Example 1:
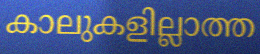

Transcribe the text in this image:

കാലുകളില്ലാത്ത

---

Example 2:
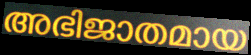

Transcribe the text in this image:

അഭിജാതമായ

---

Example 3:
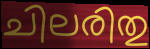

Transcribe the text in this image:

ചിലരിതു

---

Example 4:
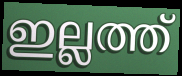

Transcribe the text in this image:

ഇല്ലത്ത്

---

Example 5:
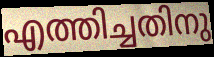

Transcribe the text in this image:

എത്തിച്ചതിനു